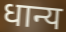
धान्य